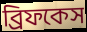
ব্রিফকেস